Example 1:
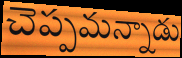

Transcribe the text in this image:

చెప్పమన్నాడు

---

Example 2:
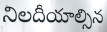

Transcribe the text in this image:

నిలదీయాల్సిన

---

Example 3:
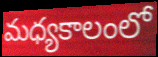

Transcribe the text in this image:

మధ్యకాలంలో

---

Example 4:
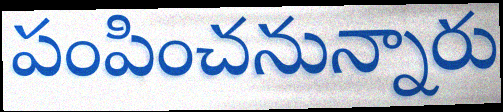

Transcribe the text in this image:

పంపించనున్నారు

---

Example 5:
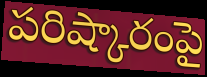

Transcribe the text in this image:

పరిష్కారంపై